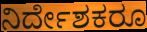
ನಿರ್ದೇಶಕರೂ